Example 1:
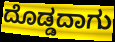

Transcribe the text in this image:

ದೊಡ್ಡದಾಗು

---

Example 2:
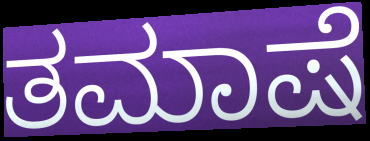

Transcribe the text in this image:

ತಮಾಷೆ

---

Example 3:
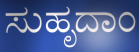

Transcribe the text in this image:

ಸುಹೃದಾಂ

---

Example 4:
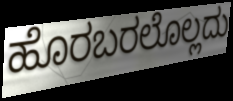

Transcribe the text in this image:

ಹೊರಬರಲೊಲ್ಲದು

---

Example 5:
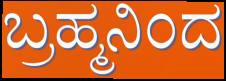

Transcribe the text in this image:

ಬ್ರಹ್ಮನಿಂದ